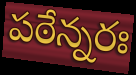
పఠేన్నరః